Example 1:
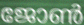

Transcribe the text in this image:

ജോൺ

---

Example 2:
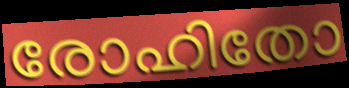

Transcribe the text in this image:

രോഹിതോ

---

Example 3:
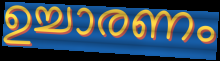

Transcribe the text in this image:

ഉച്ചാരണം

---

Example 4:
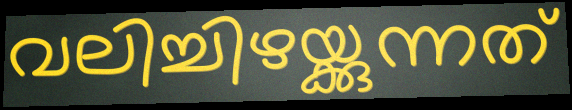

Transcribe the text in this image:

വലിച്ചിഴയ്ക്കുന്നത്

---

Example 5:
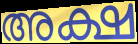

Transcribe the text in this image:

അക്ഷ